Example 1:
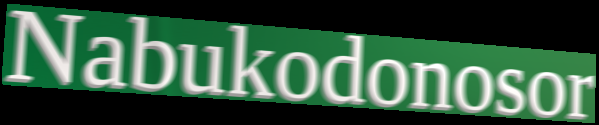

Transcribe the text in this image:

Nabukodonosor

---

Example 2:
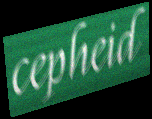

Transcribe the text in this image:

cepheid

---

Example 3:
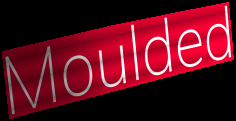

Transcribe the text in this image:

Moulded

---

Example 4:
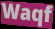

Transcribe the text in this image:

Waqf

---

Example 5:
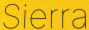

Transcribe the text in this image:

Sierra